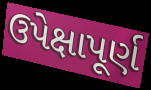
ઉપેક્ષાપૂર્ણ